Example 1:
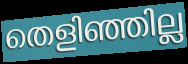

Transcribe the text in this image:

തെളിഞ്ഞില്ല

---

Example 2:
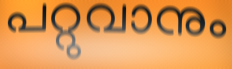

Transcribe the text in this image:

പറ്റുവാനും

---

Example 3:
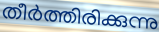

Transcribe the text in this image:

തീർത്തിരിക്കുന്നു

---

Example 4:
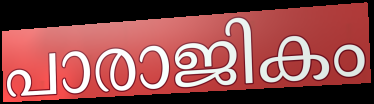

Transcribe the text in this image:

പാരാജികം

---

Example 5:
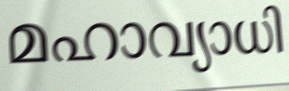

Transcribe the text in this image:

മഹാവ്യാധി